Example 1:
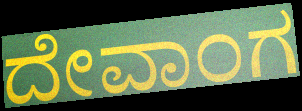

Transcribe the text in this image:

ದೇವಾಂಗ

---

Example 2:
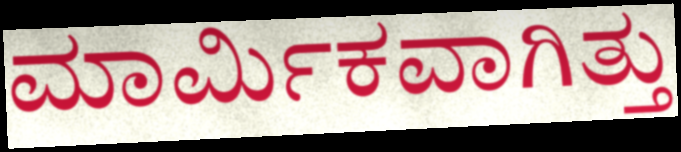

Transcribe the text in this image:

ಮಾರ್ಮಿಕವಾಗಿತ್ತು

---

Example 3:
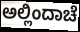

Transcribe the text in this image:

ಅಲ್ಲಿಂದಾಚೆ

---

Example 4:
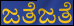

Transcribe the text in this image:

ಜತೆಜತೆ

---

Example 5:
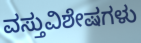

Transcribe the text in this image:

ವಸ್ತುವಿಶೇಷಗಳು